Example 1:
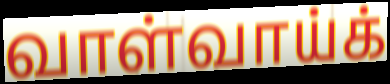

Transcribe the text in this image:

வாள்வாய்க்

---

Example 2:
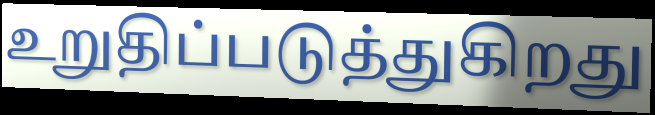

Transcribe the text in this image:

உறுதிப்படுத்துகிறது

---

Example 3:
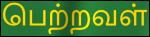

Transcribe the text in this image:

பெற்றவள்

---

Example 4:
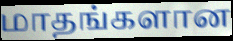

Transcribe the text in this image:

மாதங்களான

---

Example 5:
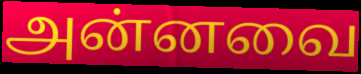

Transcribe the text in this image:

அன்னவை